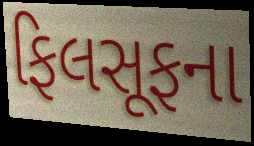
ફિલસૂફના